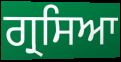
ਗ੍ਰਸਿਆ